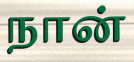
நான்